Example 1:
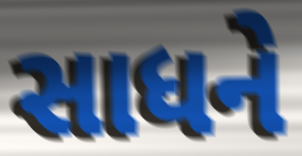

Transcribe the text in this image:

સાધને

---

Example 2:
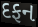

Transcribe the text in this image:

દફન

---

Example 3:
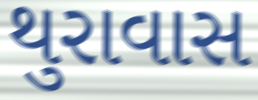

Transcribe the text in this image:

થુરાવાસ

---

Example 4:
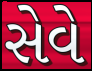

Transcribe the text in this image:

સેવે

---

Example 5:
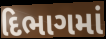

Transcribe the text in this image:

દિભાગમાં